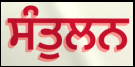
ਸੰਤੁਲਨ